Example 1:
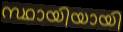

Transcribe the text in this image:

സ്ഥായിയായി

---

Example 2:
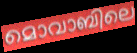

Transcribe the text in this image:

മൊവാബിലെ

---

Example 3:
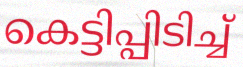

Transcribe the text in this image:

കെട്ടിപ്പിടിച്ച്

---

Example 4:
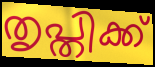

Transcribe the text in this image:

തൃപ്തിക്ക്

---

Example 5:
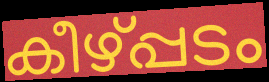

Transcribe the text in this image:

കീഴ്പ്പടം